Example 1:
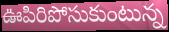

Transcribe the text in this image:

ఊపిరిపోసుకుంటున్న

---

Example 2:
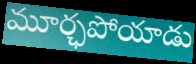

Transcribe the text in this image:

మూర్ఛపోయాడు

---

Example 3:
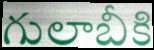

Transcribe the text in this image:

గులాబీకి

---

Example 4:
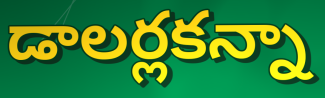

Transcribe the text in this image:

డాలర్లకన్నా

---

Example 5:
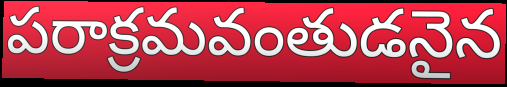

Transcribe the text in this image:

పరాక్రమవంతుడనైన